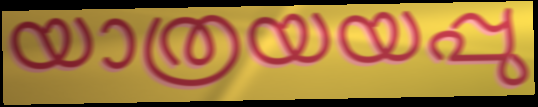
യാത്രയയപ്പു